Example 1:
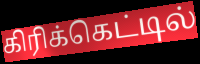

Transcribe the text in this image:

கிரிக்கெட்டில்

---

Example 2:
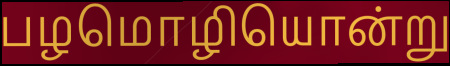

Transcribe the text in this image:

பழமொழியொன்று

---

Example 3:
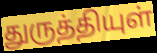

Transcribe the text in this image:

துருத்தியுள்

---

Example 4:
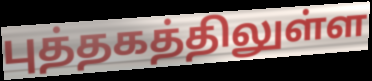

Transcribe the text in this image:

புத்தகத்திலுள்ள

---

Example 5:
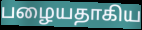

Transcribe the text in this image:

பழையதாகிய